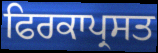
ਫਿਰਕਾਪ੍ਰਸਤ